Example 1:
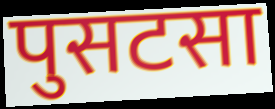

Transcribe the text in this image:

पुसटसा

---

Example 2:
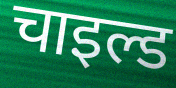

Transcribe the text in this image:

चाइल्ड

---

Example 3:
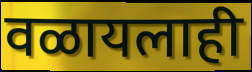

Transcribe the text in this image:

वळायलाही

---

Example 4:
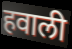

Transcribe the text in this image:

हवाली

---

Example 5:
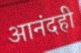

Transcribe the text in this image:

आनंदही